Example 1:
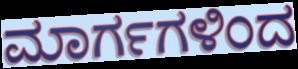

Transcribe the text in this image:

ಮಾರ್ಗಗಳಿಂದ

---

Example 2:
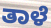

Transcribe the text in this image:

ತಾಳೆ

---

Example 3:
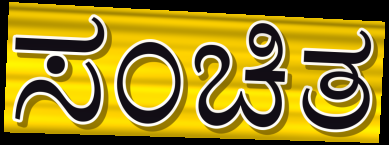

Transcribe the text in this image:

ಸಂಚಿತ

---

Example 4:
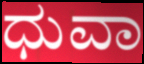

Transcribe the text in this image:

ಧುವಾ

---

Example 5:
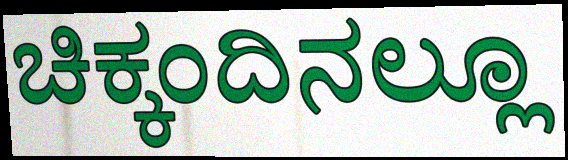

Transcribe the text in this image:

ಚಿಕ್ಕಂದಿನಲ್ಲೂ